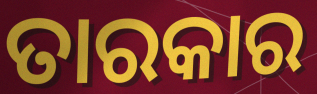
ତାରକାର